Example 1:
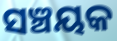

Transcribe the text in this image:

ସଞ୍ଚୟକ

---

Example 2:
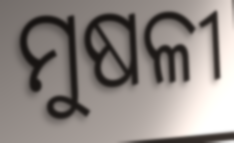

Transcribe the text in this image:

ମୁଷଳୀ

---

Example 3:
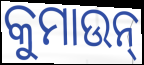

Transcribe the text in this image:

କୁମାଉନ୍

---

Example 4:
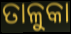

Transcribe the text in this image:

ତାଳୁକା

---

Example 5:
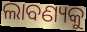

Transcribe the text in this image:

ଲାବଣ୍ୟକୁ